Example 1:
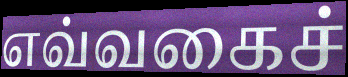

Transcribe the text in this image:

எவ்வகைச்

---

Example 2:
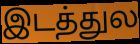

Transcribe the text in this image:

இடத்துல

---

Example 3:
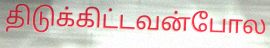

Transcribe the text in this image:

திடுக்கிட்டவன்போல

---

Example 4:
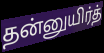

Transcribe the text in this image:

தன்னுயிர்த்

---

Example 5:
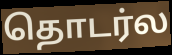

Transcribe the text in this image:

தொடர்ல